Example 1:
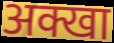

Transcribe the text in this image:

अक्खा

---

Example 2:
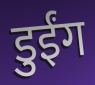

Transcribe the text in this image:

डुईंग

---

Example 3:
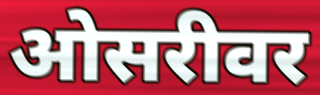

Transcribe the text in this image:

ओसरीवर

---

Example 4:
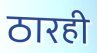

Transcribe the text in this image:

ठारही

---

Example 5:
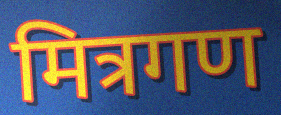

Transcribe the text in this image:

मित्रगण